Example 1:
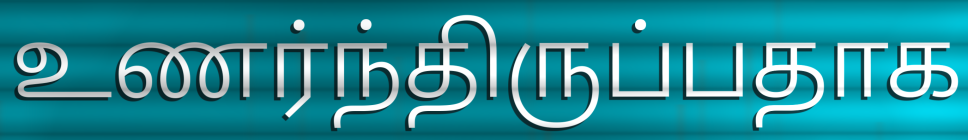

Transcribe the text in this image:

உணர்ந்திருப்பதாக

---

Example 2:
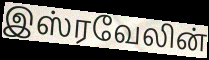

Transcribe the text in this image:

இஸ்ரவேலின்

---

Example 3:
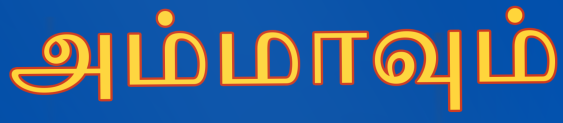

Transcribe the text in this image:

அம்மாவும்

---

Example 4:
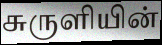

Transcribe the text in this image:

சுருளியின்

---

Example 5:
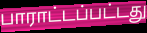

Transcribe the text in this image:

பாராட்டப்பட்டது